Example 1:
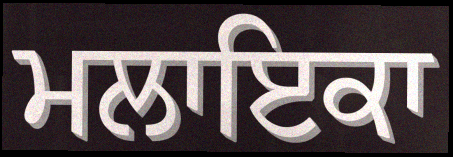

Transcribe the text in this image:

ਮਲਾਇਕਾ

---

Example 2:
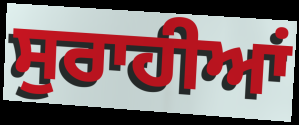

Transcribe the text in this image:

ਸੁਰਾਹੀਆਂ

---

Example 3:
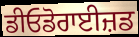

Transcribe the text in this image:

ਡੀਓਡੋਰਾਈਜ਼ਡ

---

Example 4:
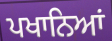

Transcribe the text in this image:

ਪਖਾਨਿਆਂ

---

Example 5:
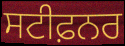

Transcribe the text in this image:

ਸਟੀਫ਼ਨਰ